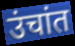
उंचांत